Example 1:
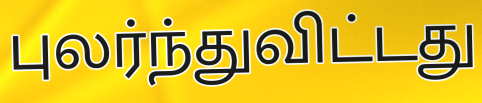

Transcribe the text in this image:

புலர்ந்துவிட்டது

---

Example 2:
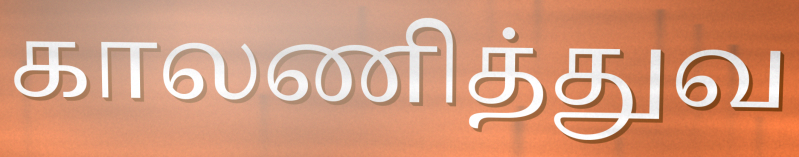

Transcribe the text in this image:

காலணித்துவ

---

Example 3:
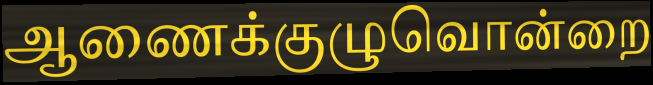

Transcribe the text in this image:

ஆணைக்குழுவொன்றை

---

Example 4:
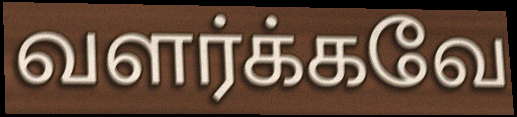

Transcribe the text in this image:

வளர்க்கவே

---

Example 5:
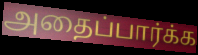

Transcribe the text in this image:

அதைப்பார்க்க